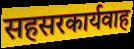
सहसरकार्यवाह